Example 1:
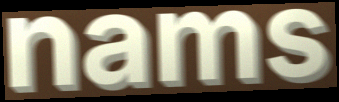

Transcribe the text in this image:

nams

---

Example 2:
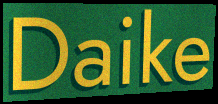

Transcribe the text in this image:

Daike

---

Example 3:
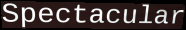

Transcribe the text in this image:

Spectacular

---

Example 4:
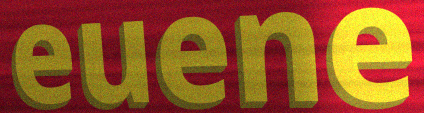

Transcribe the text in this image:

euene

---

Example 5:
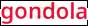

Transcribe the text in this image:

gondola